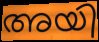
അയി